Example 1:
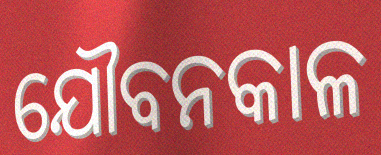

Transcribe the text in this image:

ଯୌବନକାଳ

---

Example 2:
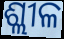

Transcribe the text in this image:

ଶ୍ଲୀଳ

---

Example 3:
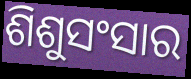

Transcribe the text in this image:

ଶିଶୁସଂସାର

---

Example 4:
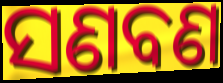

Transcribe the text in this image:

ସଣବଣ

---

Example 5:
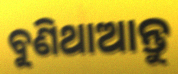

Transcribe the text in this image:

ବୁଣିଥାଆନ୍ତୁ